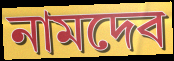
নামদেব